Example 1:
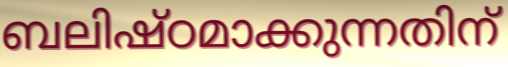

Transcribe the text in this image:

ബലിഷ്ഠമാക്കുന്നതിന്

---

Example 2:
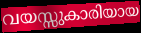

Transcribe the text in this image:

വയസ്സുകാരിയായ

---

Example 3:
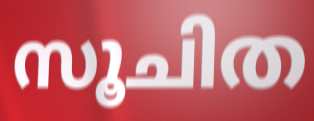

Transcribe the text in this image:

സൂചിത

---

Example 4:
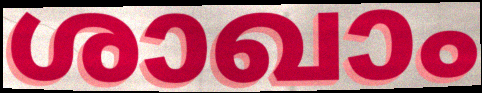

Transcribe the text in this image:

ശാഖാം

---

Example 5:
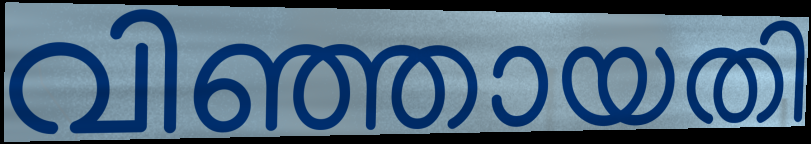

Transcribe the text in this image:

വിഞ്ഞായതി